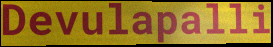
Devulapalli